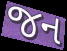
જન